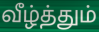
வீழ்த்தும்